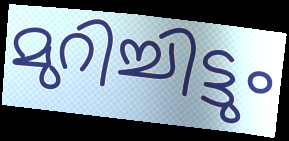
മുറിച്ചിട്ടും